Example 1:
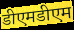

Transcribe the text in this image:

डीएमडीएम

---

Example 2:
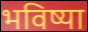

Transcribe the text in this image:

भविष्या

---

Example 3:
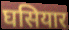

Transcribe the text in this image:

घसियार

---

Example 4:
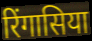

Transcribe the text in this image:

रिंगासिया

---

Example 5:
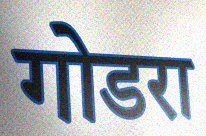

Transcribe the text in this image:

गोडरा